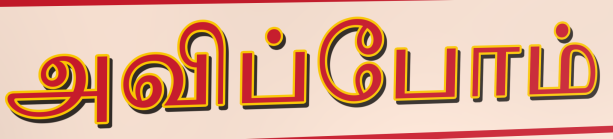
அவிப்போம்